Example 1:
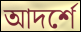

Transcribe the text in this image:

আদর্শে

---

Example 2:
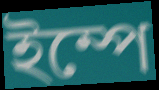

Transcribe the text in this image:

ইম্পে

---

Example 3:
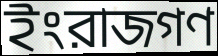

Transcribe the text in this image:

ইংরাজগণ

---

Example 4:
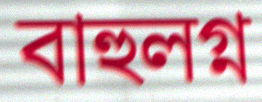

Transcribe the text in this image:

বাহুলগ্ন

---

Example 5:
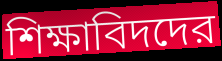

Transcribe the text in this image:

শিক্ষাবিদদের